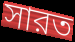
সারত